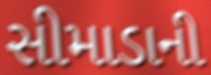
સીમાડાની